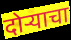
दोर्‍याचा